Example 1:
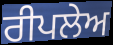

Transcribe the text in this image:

ਰੀਪਲੇਅ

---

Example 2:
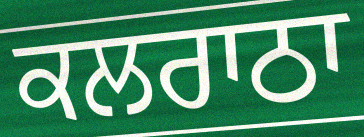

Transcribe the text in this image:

ਕਲਰਾਠਾ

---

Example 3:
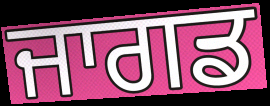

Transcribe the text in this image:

ਜਾਗਡ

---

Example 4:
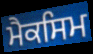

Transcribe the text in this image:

ਮੈਕਸਿਮ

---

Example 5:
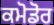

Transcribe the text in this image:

ਕਮੋਡੋਰ